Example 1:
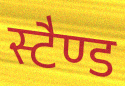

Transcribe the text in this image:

स्टैण्ड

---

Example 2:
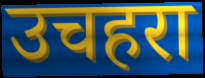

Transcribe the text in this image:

उचहरा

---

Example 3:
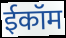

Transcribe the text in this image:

ईकॉम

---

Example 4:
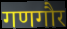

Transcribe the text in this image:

गणगौर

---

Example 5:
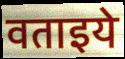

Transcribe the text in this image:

वताइये